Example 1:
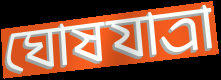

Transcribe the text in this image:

ঘোষযাত্রা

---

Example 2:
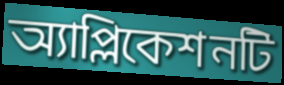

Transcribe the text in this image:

অ্যাপ্লিকেশনটি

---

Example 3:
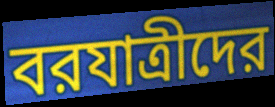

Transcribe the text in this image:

বরযাত্রীদের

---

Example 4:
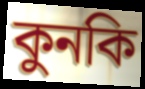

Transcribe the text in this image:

কুনকি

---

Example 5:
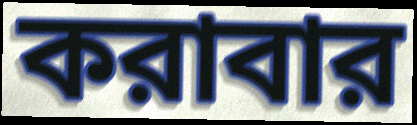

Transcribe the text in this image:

করাবার